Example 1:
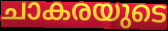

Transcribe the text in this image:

ചാകരയുടെ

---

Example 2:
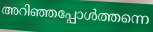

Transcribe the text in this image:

അറിഞ്ഞപ്പോൾത്തന്നെ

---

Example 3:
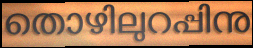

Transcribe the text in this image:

തൊഴിലുറപ്പിനു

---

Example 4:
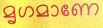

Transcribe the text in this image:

മൃഗമാണേ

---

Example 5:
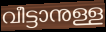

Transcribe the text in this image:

വീട്ടാനുള്ള